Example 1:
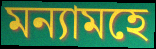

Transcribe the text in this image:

মন্যামহে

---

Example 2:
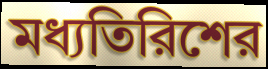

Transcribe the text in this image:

মধ্যতিরিশের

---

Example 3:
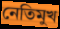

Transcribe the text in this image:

নেতিমুখ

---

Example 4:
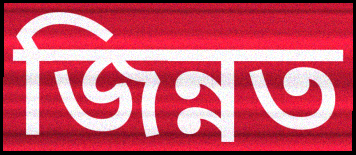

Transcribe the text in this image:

জিন্নত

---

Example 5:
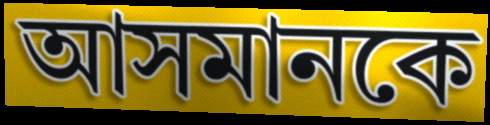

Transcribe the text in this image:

আসমানকে